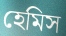
হেমিস